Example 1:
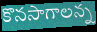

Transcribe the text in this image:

కొనసాగాలన్న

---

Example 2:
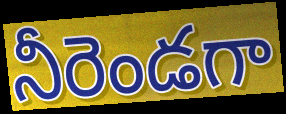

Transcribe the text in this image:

నీరెండగా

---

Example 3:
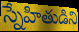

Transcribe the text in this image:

స్నేహితుడిని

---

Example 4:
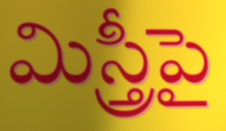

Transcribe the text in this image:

మిస్త్రీపై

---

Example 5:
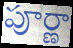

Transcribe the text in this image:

పూర్ణా